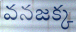
వనజక్క